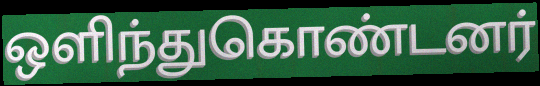
ஒளிந்துகொண்டனர்